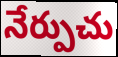
నేర్పుచు